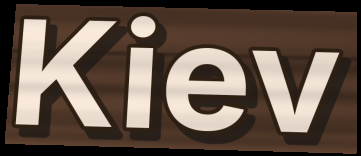
Kiev